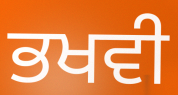
ਭਖਵੀ